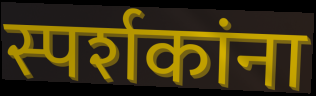
स्पर्शकांना